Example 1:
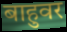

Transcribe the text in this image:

बाहुवर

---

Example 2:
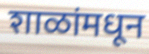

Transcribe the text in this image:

शाळांमधून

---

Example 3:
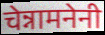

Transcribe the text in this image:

चेन्नामनेनी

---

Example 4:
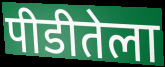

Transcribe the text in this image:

पीडीतेला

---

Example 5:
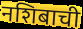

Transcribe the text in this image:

नशिबाची